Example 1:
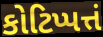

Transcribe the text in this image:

કોટિપ્પત્તં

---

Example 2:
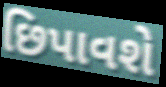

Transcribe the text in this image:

છિપાવશે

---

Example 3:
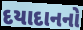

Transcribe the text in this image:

દયાદાનનો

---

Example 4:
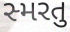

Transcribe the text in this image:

સ્મરતુ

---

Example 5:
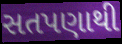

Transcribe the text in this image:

સતપણાથી